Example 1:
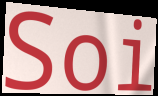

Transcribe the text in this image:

Soi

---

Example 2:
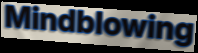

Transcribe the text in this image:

Mindblowing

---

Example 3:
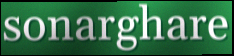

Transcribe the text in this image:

sonarghare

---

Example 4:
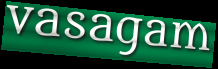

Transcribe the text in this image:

vasagam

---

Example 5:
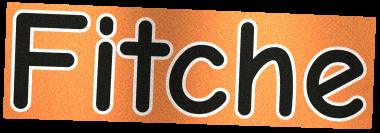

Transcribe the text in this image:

Fitche